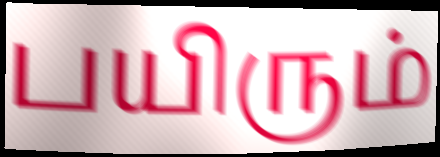
பயிரும்